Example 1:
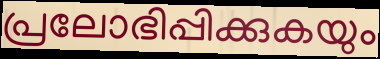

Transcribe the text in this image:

പ്രലോഭിപ്പിക്കുകയും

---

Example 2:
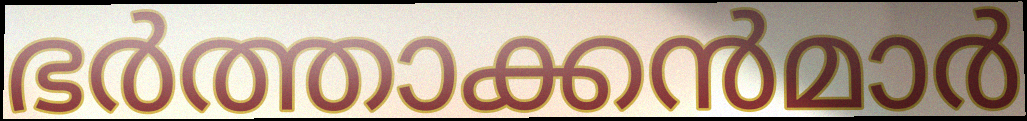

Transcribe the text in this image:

ഭർത്താക്കൻമാർ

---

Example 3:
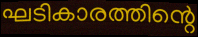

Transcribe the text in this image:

ഘടികാരത്തിന്റെ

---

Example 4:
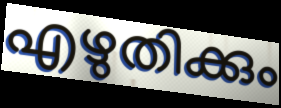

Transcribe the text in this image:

എഴുതിക്കും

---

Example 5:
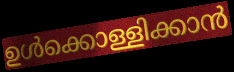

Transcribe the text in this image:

ഉൾക്കൊള്ളിക്കാൻ